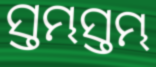
ସ୍ତମ୍ଭସ୍ତମ୍ଭ